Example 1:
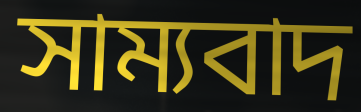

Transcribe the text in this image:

সাম্যবাদ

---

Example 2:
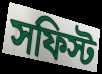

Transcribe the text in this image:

সফিস্ট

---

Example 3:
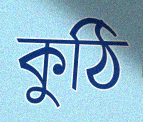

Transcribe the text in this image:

কুঠি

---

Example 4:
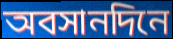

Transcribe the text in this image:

অবসানদিনে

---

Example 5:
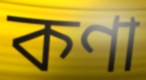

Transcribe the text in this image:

কণা